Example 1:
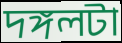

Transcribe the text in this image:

দঙ্গলটা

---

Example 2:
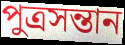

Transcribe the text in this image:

পুত্রসন্তান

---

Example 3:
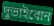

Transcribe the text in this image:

দুভাইবোন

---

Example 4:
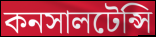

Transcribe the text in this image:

কনসালটেন্সি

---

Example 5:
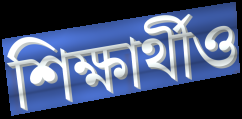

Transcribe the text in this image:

শিক্ষার্থীও